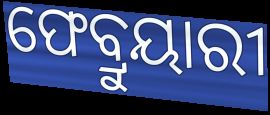
ଫେବ୍ରୁୟାରୀ